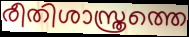
രീതിശാസ്ത്രത്തെ